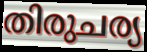
തിരുചര്യ